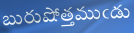
బురుషోత్తముఁడు